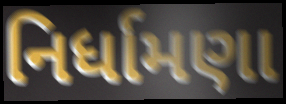
નિર્ધામણા